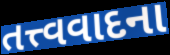
તત્ત્વવાદના